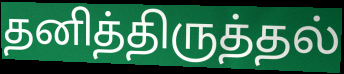
தனித்திருத்தல்